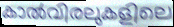
കാൽവിരലുകളിലെ